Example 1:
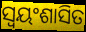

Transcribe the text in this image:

ସ୍ୱୟଂଶାସିତ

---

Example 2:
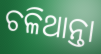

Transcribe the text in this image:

ଚଳିଥାନ୍ତା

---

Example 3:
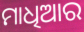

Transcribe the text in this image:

ମାଧିଆର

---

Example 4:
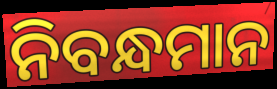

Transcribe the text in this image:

ନିବନ୍ଧମାନ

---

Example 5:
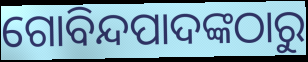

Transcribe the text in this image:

ଗୋବିନ୍ଦପାଦଙ୍କଠାରୁ